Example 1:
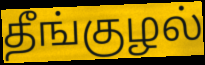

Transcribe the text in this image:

தீங்குழல்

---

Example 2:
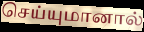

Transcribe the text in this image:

செய்யுமானால்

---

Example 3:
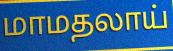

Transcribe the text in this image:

மாமதலாய்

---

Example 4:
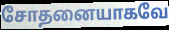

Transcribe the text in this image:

சோதனையாகவே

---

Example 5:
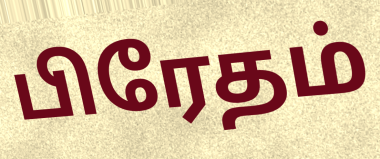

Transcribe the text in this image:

பிரேதம்